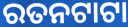
ରତନଟାଟା